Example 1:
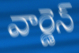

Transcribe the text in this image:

వార్డెన్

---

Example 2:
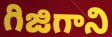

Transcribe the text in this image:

గిజిగాని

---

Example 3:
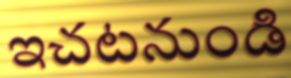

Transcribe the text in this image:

ఇచటనుండి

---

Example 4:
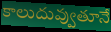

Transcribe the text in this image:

కాలుదువ్వుతూనే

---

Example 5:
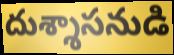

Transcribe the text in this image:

దుశ్శాసనుడి